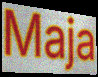
Maja